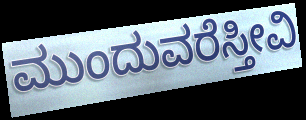
ಮುಂದುವರೆಸ್ತೀವಿ